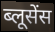
ब्लूसेंस